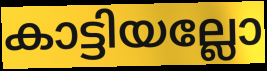
കാട്ടിയല്ലോ